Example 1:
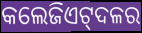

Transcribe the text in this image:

କଲେଜିଏଟ୍‍ଦଳର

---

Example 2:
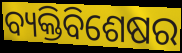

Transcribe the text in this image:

ବ୍ୟକ୍ତିବିଶେଷର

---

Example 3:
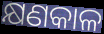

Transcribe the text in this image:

କ୍ଷଣକାଳ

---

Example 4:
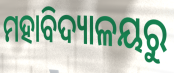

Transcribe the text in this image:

ମହାବିଦ୍ୟାଳୟରୁ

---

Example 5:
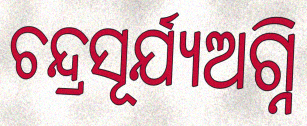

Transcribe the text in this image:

ଚନ୍ଦ୍ରସୂର୍ଯ୍ୟଅଗ୍ନି